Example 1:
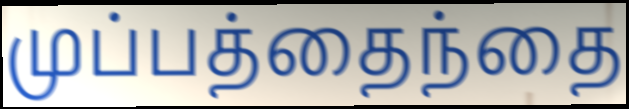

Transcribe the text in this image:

முப்பத்தைந்தை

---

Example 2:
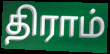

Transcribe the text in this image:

திராம்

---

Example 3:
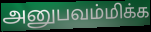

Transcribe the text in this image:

அனுபவம்மிக்க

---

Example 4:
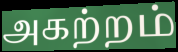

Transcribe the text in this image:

அகற்றம்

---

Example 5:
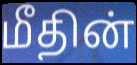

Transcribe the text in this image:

மீதின்